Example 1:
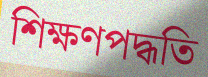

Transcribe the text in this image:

শিক্ষণপদ্ধতি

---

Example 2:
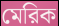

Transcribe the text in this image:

মেরিক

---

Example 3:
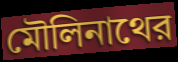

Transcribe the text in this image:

মৌলিনাথের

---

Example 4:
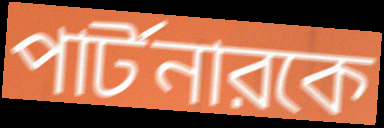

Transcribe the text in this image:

পার্টনারকে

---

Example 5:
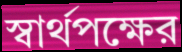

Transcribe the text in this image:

স্বার্থপক্ষের